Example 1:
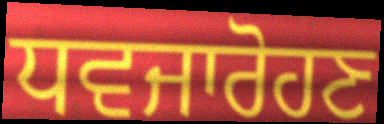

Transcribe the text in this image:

ਧਵਜਾਰੋਹਣ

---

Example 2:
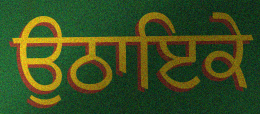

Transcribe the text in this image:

ਉਠਾਇਕੇ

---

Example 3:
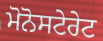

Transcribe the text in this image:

ਮੋਨੋਸਟੇਰੇਟ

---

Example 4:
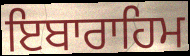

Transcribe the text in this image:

ਇਬਾਰਾਹਿਮ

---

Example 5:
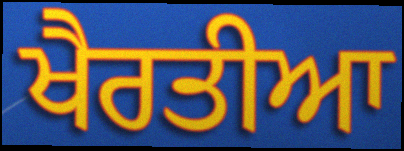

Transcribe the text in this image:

ਖੈਰਤੀਆ